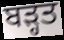
ਬੜ੍ਹਤ